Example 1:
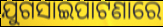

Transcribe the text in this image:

ଯୁଗସାଇପାଟଣାରେ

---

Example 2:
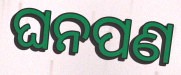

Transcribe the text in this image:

ଘନପଣ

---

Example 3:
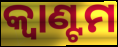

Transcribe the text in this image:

କ୍ୱାଣ୍ଟମ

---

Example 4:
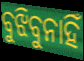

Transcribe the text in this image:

ବୁଝିବୁନାହିଁ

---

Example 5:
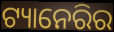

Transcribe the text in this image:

ଟ୍ୟାନେରିର